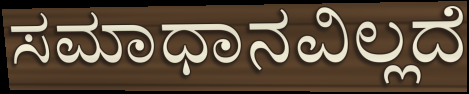
ಸಮಾಧಾನವಿಲ್ಲದೆ